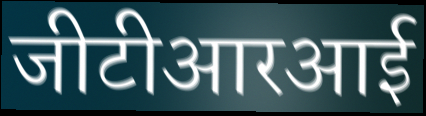
जीटीआरआई